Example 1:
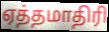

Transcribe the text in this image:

ஏத்தமாதிரி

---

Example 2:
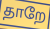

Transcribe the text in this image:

தாறே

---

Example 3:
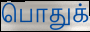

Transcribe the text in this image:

பொதுக்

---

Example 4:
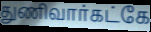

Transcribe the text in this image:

துணிவார்கட்கே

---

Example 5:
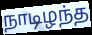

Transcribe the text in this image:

நாடிழந்த